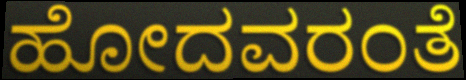
ಹೋದವರಂತೆ